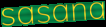
sasana